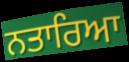
ਨਤਾਰਿਆ